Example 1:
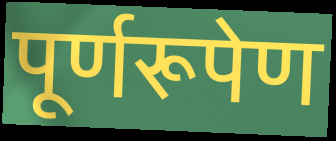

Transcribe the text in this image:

पूर्णरूपेण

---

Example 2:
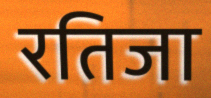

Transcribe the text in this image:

रतिजा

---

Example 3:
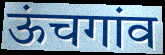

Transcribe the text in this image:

ऊंचगांव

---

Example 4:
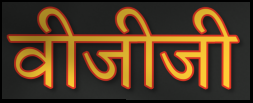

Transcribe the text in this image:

वीजीजी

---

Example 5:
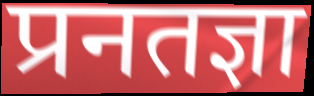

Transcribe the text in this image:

प्रनतज्ञा